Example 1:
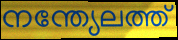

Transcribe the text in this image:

നന്ത്യേലത്ത്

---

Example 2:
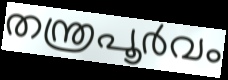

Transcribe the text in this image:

തന്ത്രപൂർവം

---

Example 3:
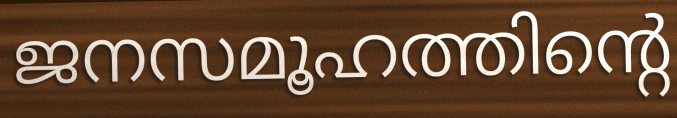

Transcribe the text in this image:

ജനസമൂഹത്തിന്റെ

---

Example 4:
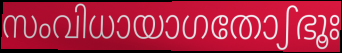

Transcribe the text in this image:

സംവിധായാഗതോഽഭൂഃ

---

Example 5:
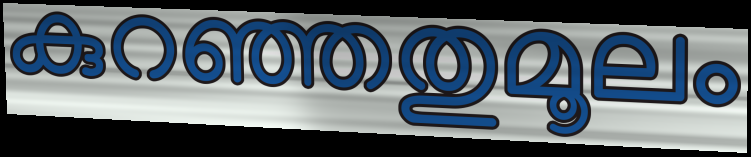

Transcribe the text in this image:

കുറഞ്ഞതുമൂലം